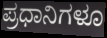
ಪ್ರಧಾನಿಗಳೂ